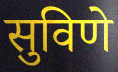
सुविणे